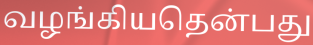
வழங்கியதென்பது